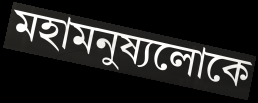
মহামনুষ্যলোকে